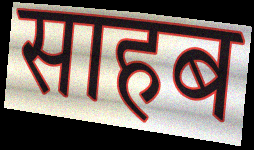
साहब